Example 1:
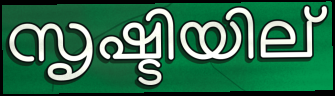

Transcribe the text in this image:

സൃഷ്ടിയില്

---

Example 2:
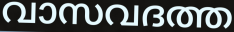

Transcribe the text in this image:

വാസവദത്ത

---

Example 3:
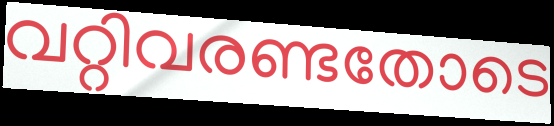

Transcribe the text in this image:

വറ്റിവരണ്ടതോടെ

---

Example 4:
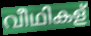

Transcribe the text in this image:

വീഥികള്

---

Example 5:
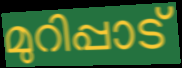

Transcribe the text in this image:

മുറിപ്പാട്